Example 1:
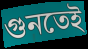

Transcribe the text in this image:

গুনতেই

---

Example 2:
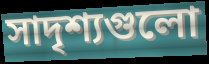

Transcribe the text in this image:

সাদৃশ্যগুলো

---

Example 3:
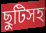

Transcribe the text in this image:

ছুটিসহ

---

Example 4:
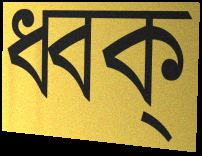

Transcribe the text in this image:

ধ্বক্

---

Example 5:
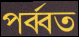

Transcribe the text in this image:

পর্ব্বত